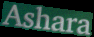
Ashara